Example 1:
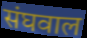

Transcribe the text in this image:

संघवाल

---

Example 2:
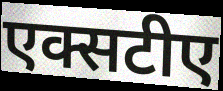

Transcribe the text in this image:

एक्सटीए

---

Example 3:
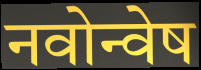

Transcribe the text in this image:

नवोन्वेष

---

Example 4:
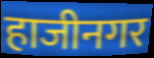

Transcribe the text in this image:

हाजीनगर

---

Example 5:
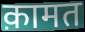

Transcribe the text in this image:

क़ामत